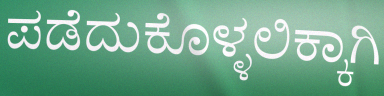
ಪಡೆದುಕೊಳ್ಳಲಿಕ್ಕಾಗಿ